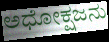
ಅಧೋಕ್ಷಜನು